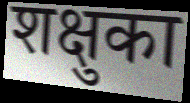
शक्षुका